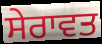
ਸੇਰਾਵਤ